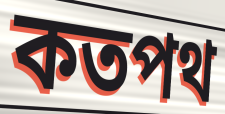
কতপথ